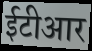
ईटीआर